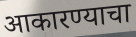
आकारण्याचा